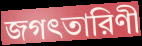
জগৎতারিণী